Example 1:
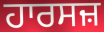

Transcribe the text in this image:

ਹਾਰਸਜ਼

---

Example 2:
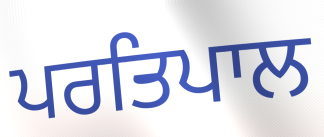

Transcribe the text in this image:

ਪਰਤਿਪਾਲ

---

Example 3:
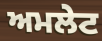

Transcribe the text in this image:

ਅਮਲੇਟ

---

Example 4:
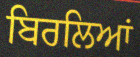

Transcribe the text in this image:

ਬਿਰਲਿਆਂ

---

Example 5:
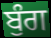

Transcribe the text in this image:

ਬੁੰਗ